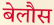
बेलौस